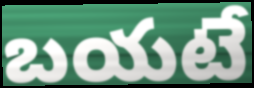
బయటే